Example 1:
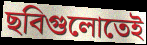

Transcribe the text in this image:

ছবিগুলোতেই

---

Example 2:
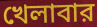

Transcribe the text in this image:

খেলাবার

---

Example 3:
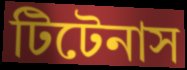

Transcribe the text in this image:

টিটেনাস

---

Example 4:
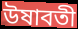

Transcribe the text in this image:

উষাবতী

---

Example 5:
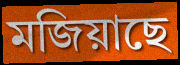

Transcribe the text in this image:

মজিয়াছে